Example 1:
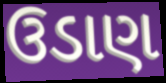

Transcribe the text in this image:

ઉડાણ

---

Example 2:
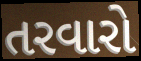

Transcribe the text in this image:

તરવારો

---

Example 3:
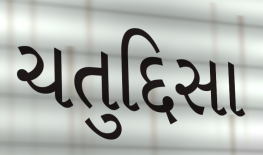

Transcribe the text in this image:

ચતુદ્દિસા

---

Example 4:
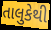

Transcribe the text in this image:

તાલુકેથી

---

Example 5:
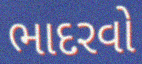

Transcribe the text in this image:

ભાદરવો